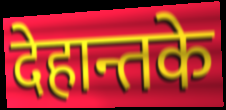
देहान्तके